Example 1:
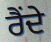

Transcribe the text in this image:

ਰੈਂਦੇ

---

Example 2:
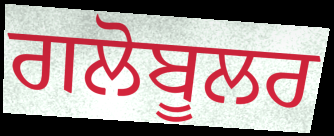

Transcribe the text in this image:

ਗਲੋਬੂਲਰ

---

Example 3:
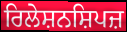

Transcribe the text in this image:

ਰਿਲੇਸ਼ਨਸ਼ਿਪਜ਼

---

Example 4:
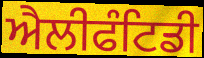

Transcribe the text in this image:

ਐਲੀਫੰਟਿਡੀ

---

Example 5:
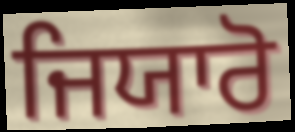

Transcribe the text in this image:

ਜਿਯਾਰੋ